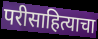
परीसाहित्याचा